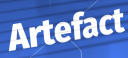
Artefact